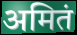
अमितं